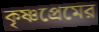
কৃষ্ণপ্রেমের